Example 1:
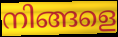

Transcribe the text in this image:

നിങ്ങളെ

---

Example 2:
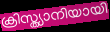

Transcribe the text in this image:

ക്രിസ്ത്യാനിയായി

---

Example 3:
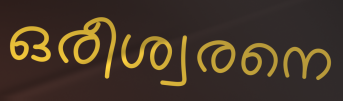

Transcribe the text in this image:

ഒരീശ്വരനെ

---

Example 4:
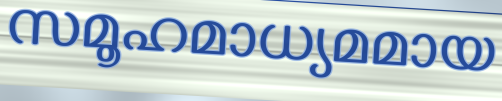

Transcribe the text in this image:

സമൂഹമാധ്യമമായ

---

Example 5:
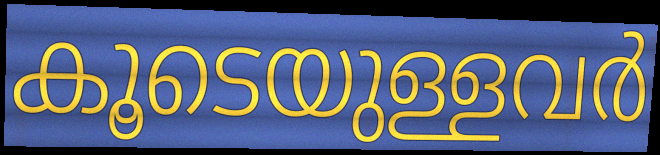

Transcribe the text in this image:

കൂടെയുള്ളവർ